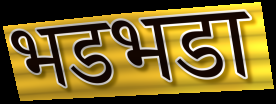
भडभडा